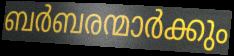
ബർബരന്മാർക്കും